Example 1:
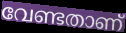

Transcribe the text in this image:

വേണ്ടതാണ്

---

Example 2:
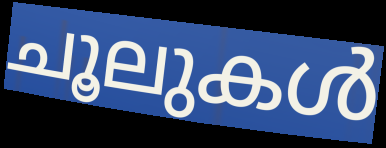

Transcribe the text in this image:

ചൂലുകൾ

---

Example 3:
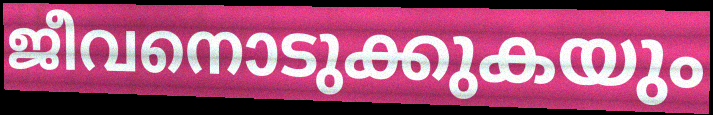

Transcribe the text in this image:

ജീവനൊടുക്കുകയും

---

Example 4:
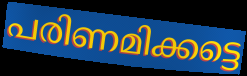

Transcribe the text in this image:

പരിണമിക്കട്ടെ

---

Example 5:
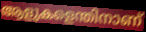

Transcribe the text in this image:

ആളുകളെന്തിനാണ്